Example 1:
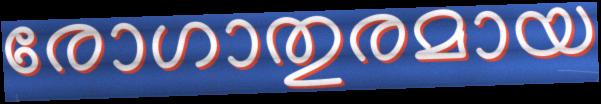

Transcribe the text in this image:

രോഗാതുരമായ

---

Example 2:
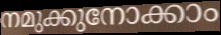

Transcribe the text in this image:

നമുക്കുനോക്കാം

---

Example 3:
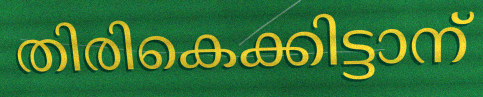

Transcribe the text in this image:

തിരികെക്കിട്ടാന്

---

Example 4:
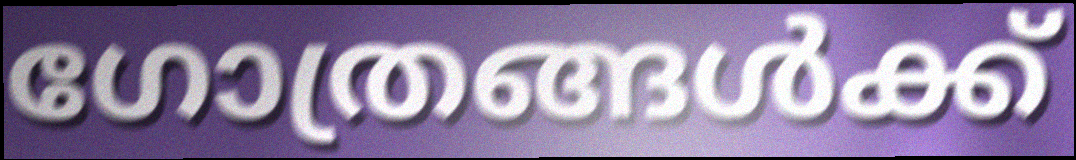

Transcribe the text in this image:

ഗോത്രങ്ങൾക്ക്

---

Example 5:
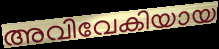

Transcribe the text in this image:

അവിവേകിയായ